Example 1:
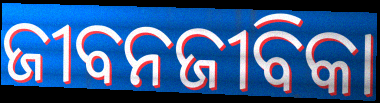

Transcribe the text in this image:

ଜୀବନଜୀବିକା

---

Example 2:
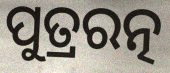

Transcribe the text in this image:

ପୁତ୍ରରତ୍ନ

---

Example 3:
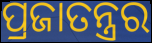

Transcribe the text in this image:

ପ୍ରଜାତନ୍ତ୍ରର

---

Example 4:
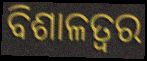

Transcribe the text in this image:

ବିଶାଳତ୍ୱର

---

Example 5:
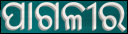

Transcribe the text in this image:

ପାଗଳୀର